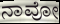
ನಾವೋ